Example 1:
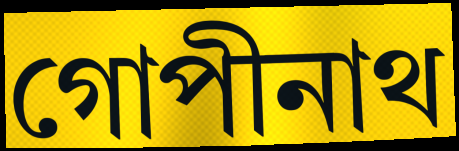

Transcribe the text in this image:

গোপীনাথ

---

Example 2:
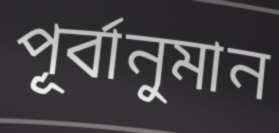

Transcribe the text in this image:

পূৰ্বানুমান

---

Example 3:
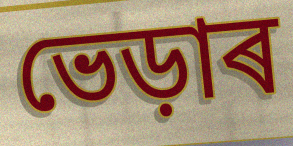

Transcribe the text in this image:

ভেড়াৰ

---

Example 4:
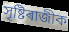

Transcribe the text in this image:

সৃষ্টিৰাজীক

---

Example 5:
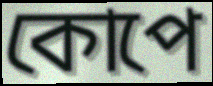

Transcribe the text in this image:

কোপে